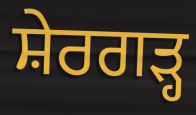
ਸ਼ੇਰਗੜ੍ਹ